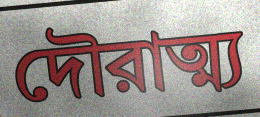
দৌরাত্ম্য